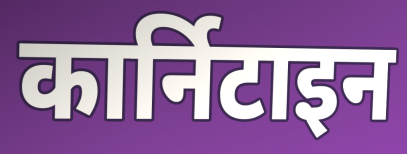
कार्निटाइन